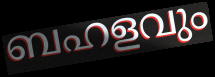
ബഹളവും